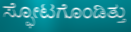
ಸ್ಫೋಟಗೊಂಡಿತ್ತು